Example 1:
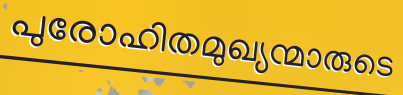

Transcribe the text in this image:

പുരോഹിതമുഖ്യന്മാരുടെ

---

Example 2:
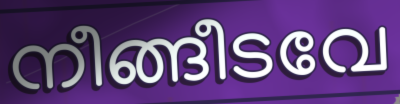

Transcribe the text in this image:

നീങ്ങീടവേ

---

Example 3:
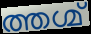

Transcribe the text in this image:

ത്തഗ്മ്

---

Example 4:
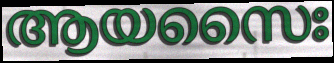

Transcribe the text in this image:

ആയസൈഃ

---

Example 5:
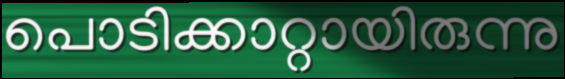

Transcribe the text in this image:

പൊടിക്കാറ്റായിരുന്നു